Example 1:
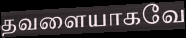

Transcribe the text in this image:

தவளையாகவே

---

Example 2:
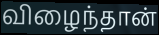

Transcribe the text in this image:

விழைந்தான்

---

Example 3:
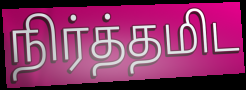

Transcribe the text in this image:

நிர்த்தமிட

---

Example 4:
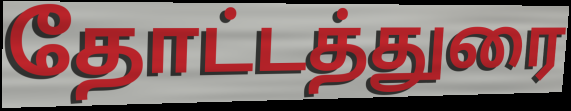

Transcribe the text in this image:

தோட்டத்துரை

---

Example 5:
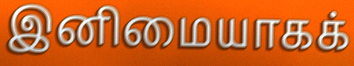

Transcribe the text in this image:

இனிமையாகக்